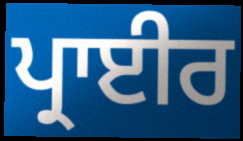
ਪ੍ਰਾਈਰ